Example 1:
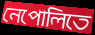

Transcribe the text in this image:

নেপোলিতে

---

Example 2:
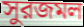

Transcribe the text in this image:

সুরজমল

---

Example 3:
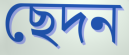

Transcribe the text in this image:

ছেদন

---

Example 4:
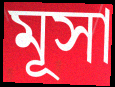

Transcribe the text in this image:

মূসা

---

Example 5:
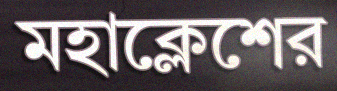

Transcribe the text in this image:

মহাক্লেশের